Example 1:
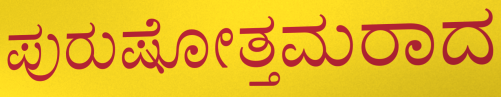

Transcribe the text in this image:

ಪುರುಷೋತ್ತಮರಾದ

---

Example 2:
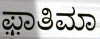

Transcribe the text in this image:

ಫ಼ಾತಿಮಾ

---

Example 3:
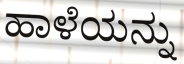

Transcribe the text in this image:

ಹಾಳೆಯನ್ನು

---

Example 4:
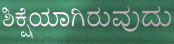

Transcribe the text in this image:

ಶಿಕ್ಷೆಯಾಗಿರುವುದು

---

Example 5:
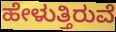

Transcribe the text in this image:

ಹೇಳುತ್ತಿರುವೆ